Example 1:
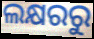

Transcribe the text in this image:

ଲକ୍ଷରରୁ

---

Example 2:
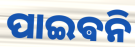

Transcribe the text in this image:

ପାଇଵନି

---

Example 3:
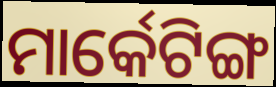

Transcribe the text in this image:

ମାର୍କେଟିଙ୍ଗ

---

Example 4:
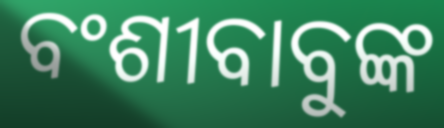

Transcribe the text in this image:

ବଂଶୀବାବୁଙ୍କ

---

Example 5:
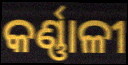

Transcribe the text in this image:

କର୍ଣ୍ଣାଳୀ